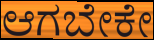
ಆಗಬೇಕೇ